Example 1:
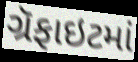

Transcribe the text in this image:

ગ્રૅફાઇટમાં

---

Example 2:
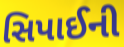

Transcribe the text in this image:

સિપાઈની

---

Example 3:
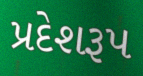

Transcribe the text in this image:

પ્રદેશરૂપ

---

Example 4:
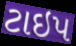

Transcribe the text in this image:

ટાઇપ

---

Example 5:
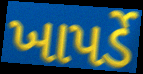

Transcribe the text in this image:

ખાપર્ડે